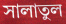
সালাতুল